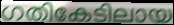
ഗതികേടിലായ